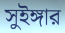
সুইঙ্গার